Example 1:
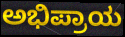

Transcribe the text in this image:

ಅಭಿಪ್ರಾಯ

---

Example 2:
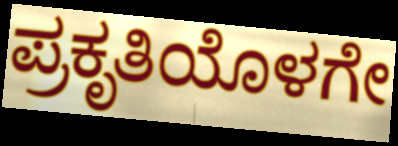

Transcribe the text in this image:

ಪ್ರಕೃತಿಯೊಳಗೇ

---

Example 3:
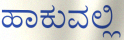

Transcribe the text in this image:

ಹಾಕುವಲ್ಲಿ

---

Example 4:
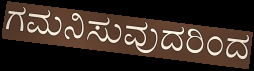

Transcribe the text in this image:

ಗಮನಿಸುವುದರಿಂದ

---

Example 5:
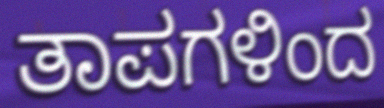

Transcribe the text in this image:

ತಾಪಗಳಿಂದ